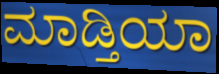
ಮಾಡ್ತಿಯಾ